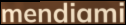
mendiami